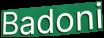
Badoni